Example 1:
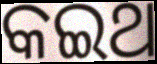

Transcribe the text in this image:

କଇଥ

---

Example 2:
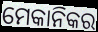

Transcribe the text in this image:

ମେକାନିକର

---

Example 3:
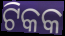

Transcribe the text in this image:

ଟିକକ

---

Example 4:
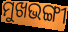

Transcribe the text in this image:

ମୁଖଭଙ୍ଗୀ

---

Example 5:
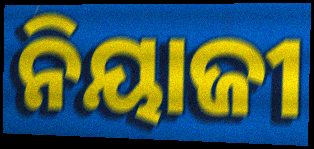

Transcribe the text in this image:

ନିୟାଜୀ